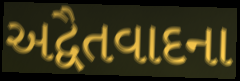
અદ્વૈતવાદના